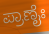
ಪ್ರಾಣೈಃ